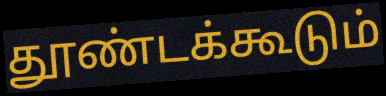
தூண்டக்கூடும்